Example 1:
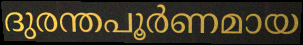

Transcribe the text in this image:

ദുരന്തപൂർണമായ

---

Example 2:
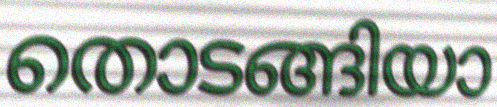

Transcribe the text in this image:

തൊടങ്ങിയാ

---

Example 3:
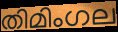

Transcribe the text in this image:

തിമിംഗല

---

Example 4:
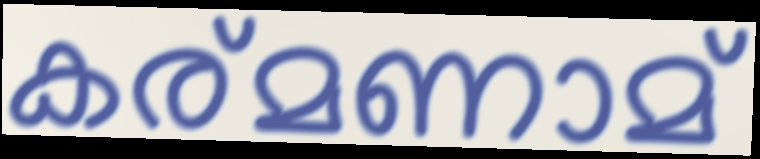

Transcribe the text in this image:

കര്മണാമ്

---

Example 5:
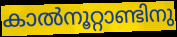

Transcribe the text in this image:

കാൽനൂറ്റാണ്ടിനു